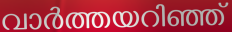
വാർത്തയറിഞ്ഞ്